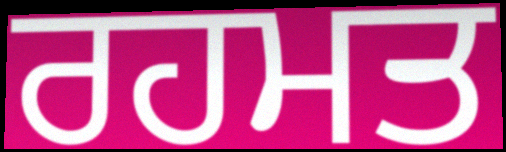
ਰਹਮਤ